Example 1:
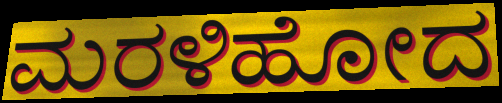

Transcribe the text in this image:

ಮರಳಿಹೋದ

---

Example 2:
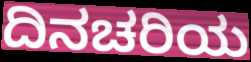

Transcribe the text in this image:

ದಿನಚರಿಯ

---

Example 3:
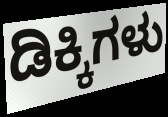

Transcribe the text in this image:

ಡಿಕ್ಕಿಗಳು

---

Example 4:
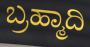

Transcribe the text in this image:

ಬ್ರಹ್ಮಾದಿ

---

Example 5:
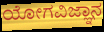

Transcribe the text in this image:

ಯೋಗವಿಜ್ಞಾನ